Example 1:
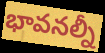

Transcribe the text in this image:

భావనల్నీ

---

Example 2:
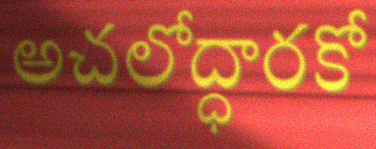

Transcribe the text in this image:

అచలోద్ధారకో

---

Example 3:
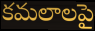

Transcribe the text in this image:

కమలాలపై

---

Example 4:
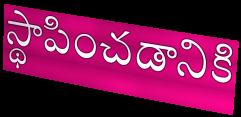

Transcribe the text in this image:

స్థాపించడానికి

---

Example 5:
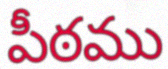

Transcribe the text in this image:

పీఠము